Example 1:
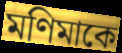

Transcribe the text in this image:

মণিমাকে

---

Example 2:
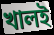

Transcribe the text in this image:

খালই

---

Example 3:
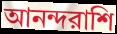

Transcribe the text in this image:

আনন্দরাশি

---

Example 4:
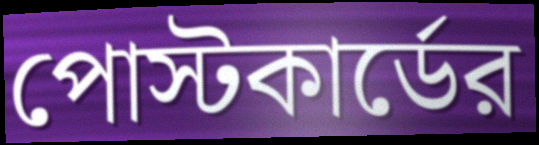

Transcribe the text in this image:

পোস্টকার্ডের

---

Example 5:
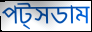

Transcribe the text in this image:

পট্‌সডাম